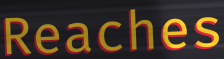
Reaches